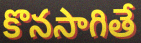
కొనసాగితే